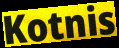
Kotnis